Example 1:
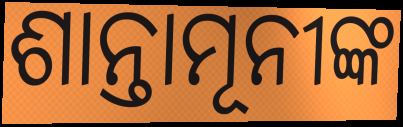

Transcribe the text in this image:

ଶାନ୍ତାମୂନୀଙ୍କ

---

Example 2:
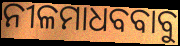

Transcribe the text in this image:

ନୀଳମାଧବବାବୁ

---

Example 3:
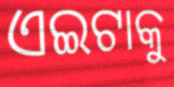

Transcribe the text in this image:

ଏଇଟାକୁ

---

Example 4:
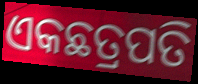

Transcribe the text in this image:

ଏକଛତ୍ରପତି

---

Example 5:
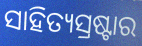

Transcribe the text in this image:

ସାହିତ୍ୟସ୍ରଷ୍ଟାର